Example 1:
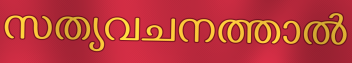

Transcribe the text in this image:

സത്യവചനത്താൽ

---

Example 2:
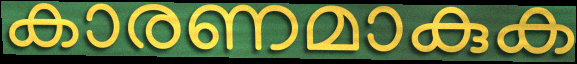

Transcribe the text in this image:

കാരണമാകുക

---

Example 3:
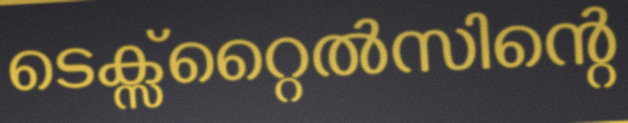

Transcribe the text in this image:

ടെക്സ്റ്റൈൽസിന്റെ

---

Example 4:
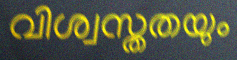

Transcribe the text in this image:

വിശ്വസ്തതയും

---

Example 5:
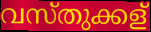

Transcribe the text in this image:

വസ്തുക്കള്